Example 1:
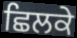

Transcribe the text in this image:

ਛਿਲਕੇ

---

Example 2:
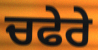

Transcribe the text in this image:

ਚਫੇਰੇ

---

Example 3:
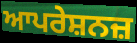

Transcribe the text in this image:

ਆਪਰੇਸ਼ਨਜ਼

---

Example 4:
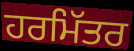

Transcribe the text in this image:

ਹਰਮਿੱਤਰ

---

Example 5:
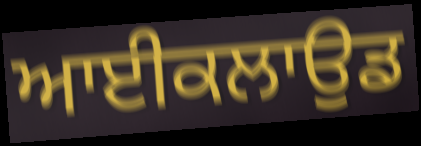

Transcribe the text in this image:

ਆਈਕਲਾਉਡ